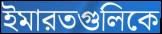
ইমারতগুলিকে